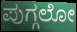
ಪುಗ್ಗಲೋ